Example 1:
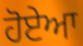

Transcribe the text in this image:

ਹੋਏਆ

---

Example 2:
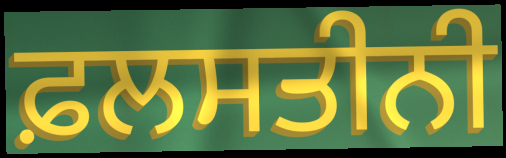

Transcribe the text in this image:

ਫ਼ਲਸਤੀਨੀ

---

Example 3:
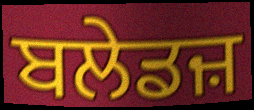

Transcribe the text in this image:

ਬਲੇਡਜ਼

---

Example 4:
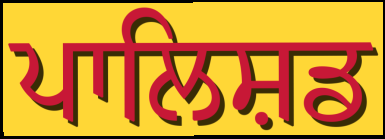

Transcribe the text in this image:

ਪਾਲਿਸ਼ਡ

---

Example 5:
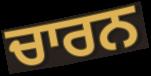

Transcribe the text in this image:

ਚਾਰਨ